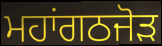
ਮਹਾਂਗਠਜੋਡ਼